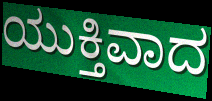
ಯುಕ್ತಿವಾದ